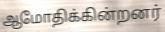
ஆமோதிக்கின்றனர்